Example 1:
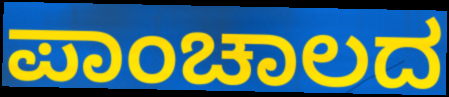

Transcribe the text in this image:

ಪಾಂಚಾಲದ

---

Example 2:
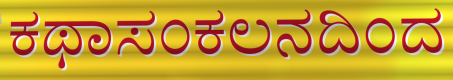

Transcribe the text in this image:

ಕಥಾಸಂಕಲನದಿಂದ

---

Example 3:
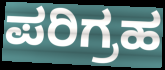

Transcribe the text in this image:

ಪರಿಗ್ರಹ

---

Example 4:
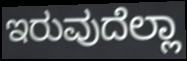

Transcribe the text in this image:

ಇರುವುದೆಲ್ಲಾ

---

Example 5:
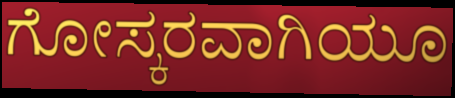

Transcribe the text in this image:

ಗೋಸ್ಕರವಾಗಿಯೂ